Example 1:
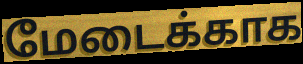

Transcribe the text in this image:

மேடைக்காக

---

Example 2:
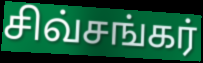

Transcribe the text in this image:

சிவ்சங்கர்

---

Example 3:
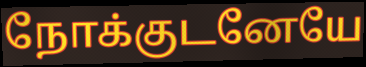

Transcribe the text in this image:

நோக்குடனேயே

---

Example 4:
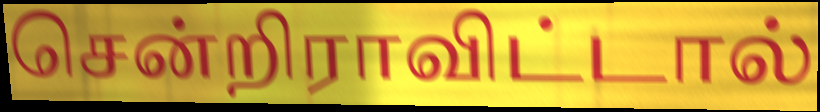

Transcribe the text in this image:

சென்றிராவிட்டால்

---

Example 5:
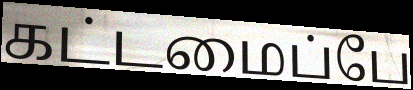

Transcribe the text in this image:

கட்டமைப்பே